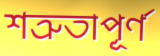
শত্রুতাপূর্ণ